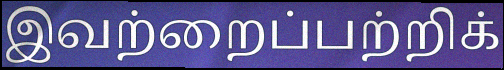
இவற்றைப்பற்றிக்